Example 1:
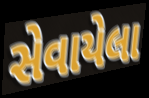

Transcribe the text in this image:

સેવાયેલા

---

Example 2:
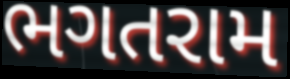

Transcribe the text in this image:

ભગતરામ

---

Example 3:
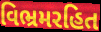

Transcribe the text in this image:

વિભ્રમરહિત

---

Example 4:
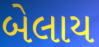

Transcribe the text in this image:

બેલાય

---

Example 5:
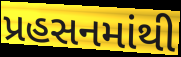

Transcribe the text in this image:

પ્રહસનમાંથી